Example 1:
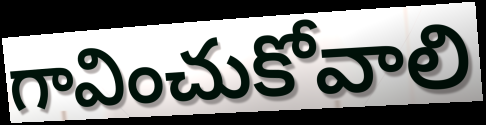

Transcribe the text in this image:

గావించుకోవాలి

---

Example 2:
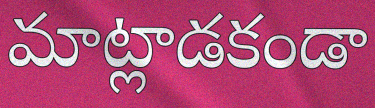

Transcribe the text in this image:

మాట్లాడకండా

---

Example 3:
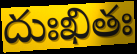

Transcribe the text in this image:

దుఃఖితః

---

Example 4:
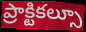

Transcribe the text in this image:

ప్రాక్టికల్సూ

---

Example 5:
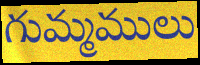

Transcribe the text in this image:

గుమ్మములు